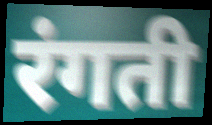
रंगती